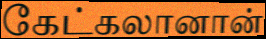
கேட்கலானான்